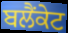
ਬਲੈਂਕੇਟ